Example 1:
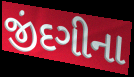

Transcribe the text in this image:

જીંદગીના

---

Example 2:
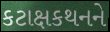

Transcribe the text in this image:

કટાક્ષકથનને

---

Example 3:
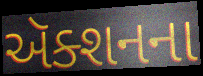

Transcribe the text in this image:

ઍક્શનના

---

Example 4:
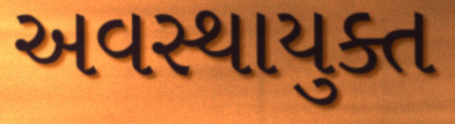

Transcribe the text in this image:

અવસ્થાયુક્ત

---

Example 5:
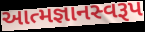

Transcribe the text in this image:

આત્મજ્ઞાનસ્વરૂપ